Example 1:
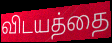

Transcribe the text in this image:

விடயத்தை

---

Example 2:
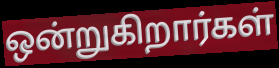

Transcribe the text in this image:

ஒன்றுகிறார்கள்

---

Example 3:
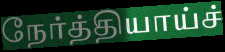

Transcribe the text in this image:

நேர்த்தியாய்ச்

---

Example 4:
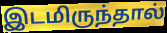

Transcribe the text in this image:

இடமிருந்தால்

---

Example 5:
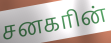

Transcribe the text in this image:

சனகரின்